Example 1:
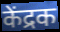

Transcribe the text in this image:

केंद्रक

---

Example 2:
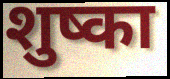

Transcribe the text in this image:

शुष्का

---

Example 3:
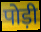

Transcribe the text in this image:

पोड़ी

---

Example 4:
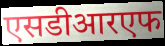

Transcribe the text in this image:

एसडीआरएफ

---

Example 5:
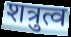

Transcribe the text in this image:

शत्रुत्व